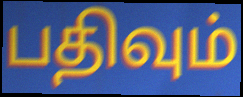
பதிவும்